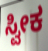
ಸ್ವೀಕ